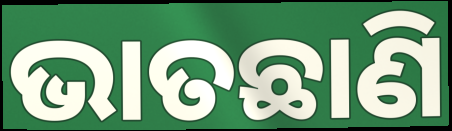
ଭାତଛାଣି